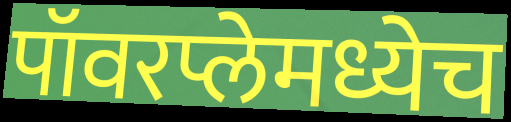
पॉवरप्लेमध्येच